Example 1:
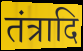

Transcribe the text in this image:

तंत्रादि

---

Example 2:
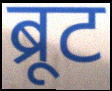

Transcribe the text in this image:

ब्रूट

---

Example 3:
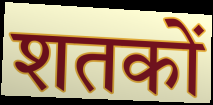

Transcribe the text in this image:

शतकों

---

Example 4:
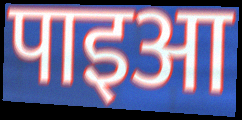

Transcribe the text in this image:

पाइआ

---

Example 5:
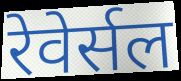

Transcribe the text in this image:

रेवेर्सल